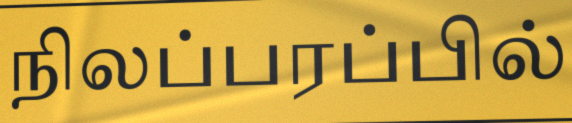
நிலப்பரப்பில்